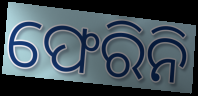
ଫେରିନି